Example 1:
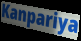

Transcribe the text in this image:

Kanpariya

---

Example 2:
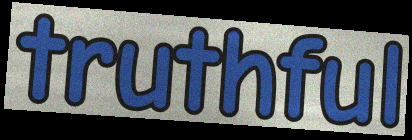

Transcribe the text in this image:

truthful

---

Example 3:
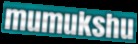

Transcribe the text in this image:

mumukshu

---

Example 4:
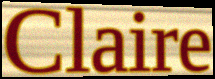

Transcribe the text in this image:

Claire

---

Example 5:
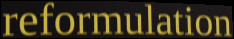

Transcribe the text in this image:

reformulation